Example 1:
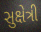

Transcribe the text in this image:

સુક્ષેત્રી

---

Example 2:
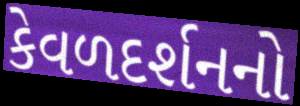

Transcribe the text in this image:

કેવળદર્શનનો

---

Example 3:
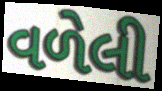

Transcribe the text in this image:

વળેલી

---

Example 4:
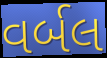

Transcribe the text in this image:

વર્બલ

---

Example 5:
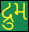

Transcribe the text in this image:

દ્રુમ